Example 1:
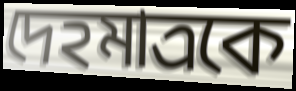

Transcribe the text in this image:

দেহমাত্রকে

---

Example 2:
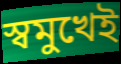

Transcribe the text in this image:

স্বমুখেই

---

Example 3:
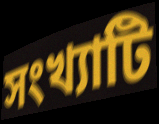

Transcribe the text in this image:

সংখ্যাটি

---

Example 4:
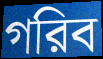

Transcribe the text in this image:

গরিব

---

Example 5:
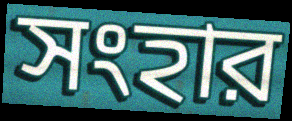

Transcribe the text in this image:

সংহার